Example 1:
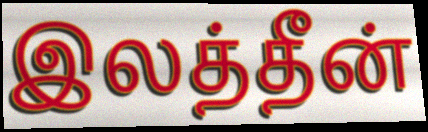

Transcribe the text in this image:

இலத்தீன்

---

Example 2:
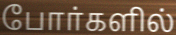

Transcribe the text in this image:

போர்களில்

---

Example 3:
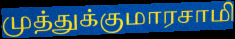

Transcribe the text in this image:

முத்துக்குமாரசாமி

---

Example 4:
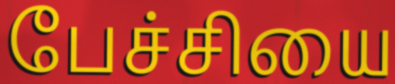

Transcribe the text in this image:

பேச்சியை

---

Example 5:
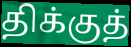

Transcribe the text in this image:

திக்குத்